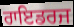
ਰਾਇਡਰਜ